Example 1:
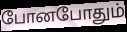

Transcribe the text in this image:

போனபோதும்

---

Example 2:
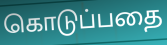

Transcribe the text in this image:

கொடுப்பதை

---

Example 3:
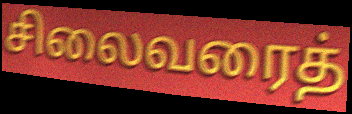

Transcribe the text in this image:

சிலைவரைத்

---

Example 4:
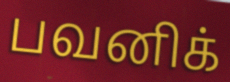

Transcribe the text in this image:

பவனிக்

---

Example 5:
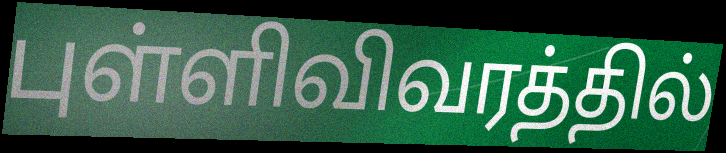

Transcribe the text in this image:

புள்ளிவிவரத்தில்